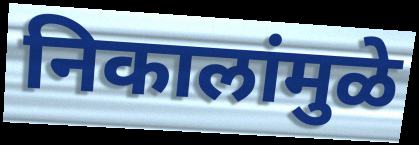
निकालांमुळे